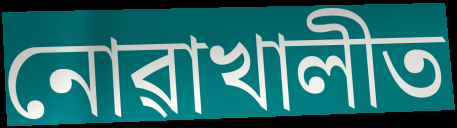
নোৱাখালীত